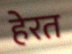
हेरत